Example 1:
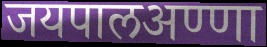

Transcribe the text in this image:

जयपालअण्णा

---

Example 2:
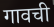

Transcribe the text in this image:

गावची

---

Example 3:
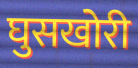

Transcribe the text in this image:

घुसखोरी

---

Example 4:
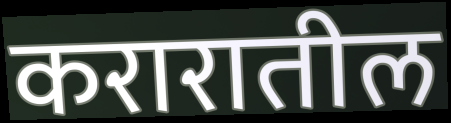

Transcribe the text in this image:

करारातील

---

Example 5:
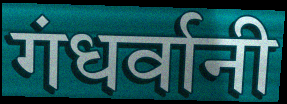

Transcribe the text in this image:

गंधर्वानी